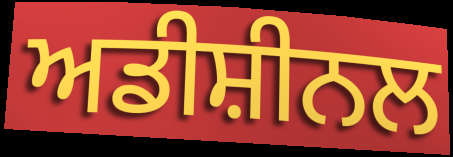
ਅਡੀਸ਼ੀਨਲ